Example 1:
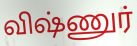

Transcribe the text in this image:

விஷ்ணுர்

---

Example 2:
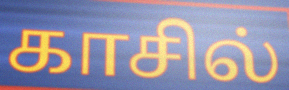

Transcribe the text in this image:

காசில்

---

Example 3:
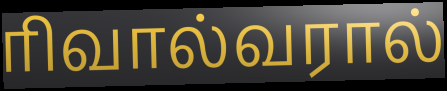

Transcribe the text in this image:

ரிவால்வரால்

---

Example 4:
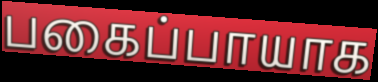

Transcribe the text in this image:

பகைப்பாயாக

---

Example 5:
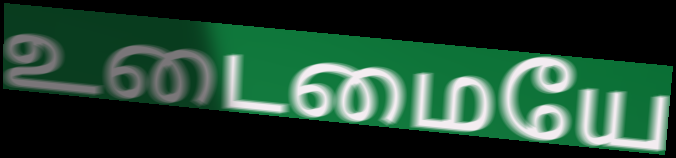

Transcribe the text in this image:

உடைமையே